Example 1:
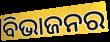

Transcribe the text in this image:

ବିଭାଜନର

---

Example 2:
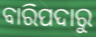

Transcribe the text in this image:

ବାରିପଦାରୁ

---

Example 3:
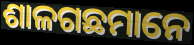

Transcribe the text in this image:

ଶାଳଗଛମାନେ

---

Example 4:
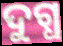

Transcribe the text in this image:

ଦୁଗ୍ଧ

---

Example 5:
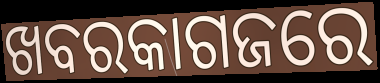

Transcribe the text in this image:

ଖବରକାଗଜରେ